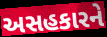
અસહકારને